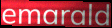
emarald